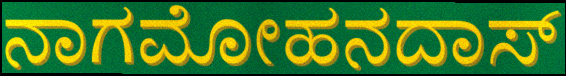
ನಾಗಮೋಹನದಾಸ್